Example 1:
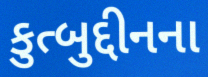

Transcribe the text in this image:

કુત્બુદ્દીનના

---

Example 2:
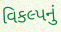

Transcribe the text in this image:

વિકલ્પનું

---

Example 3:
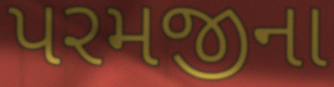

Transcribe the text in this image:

પરમજીના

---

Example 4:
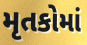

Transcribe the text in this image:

મૃતકોમાં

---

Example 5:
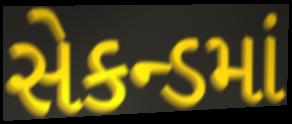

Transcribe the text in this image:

સેકન્ડમાં